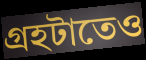
গ্রহটাতেও